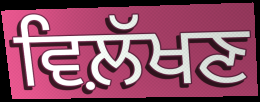
ਵਿਲ਼ੱਖਣ